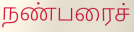
நண்பரைச்